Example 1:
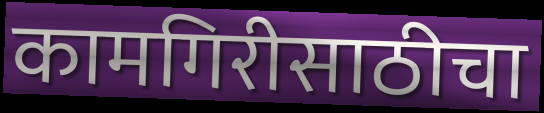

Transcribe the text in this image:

कामगिरीसाठीचा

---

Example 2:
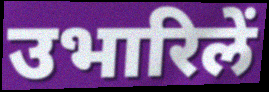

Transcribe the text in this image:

उभारिलें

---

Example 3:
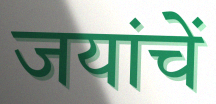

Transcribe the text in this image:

जयांचें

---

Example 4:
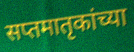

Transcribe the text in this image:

सप्तमातृकांच्या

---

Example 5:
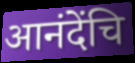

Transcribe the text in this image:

आनंदेंचि